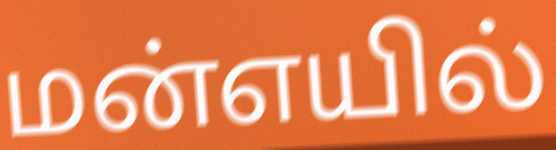
மன்எயில்